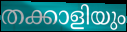
തക്കാളിയും